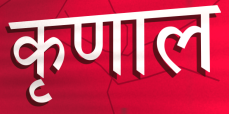
कृणाल